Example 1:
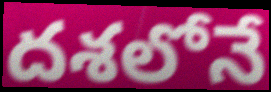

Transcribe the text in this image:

దశలోనే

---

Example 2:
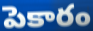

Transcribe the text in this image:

పెకారం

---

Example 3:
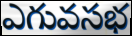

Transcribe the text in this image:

ఎగువసభ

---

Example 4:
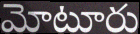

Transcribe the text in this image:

మోటూరు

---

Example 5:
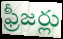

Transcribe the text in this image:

ఫ్రీజర్లు